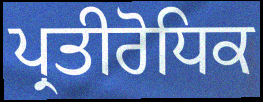
ਪ੍ਰਤੀਰੋਧਿਕ